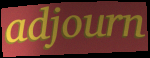
adjourn